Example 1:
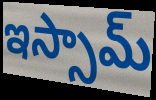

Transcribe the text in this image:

ఇస్సామ్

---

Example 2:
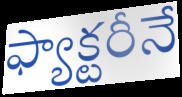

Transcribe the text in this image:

ఫ్యాక్టరీనే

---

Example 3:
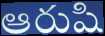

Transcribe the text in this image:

ఆరుషి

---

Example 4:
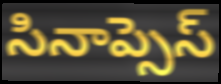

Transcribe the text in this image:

సినాప్సెస్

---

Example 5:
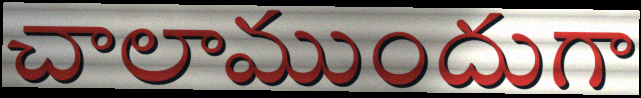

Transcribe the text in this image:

చాలాముందుగా